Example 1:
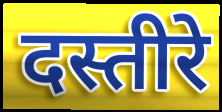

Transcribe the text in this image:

दस्तीरे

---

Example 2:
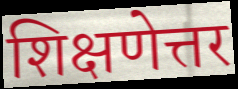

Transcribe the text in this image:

शिक्षणेत्तर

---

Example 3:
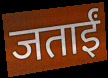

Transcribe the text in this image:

जताईं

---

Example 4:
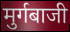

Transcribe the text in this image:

मुर्गबाजी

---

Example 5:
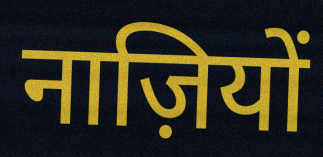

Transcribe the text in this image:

नाज़ियों